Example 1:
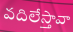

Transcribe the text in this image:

వదిలేస్తావా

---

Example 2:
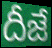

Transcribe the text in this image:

దీజే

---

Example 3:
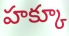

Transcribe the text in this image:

హక్కూ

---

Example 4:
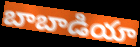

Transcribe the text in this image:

బాబాడియా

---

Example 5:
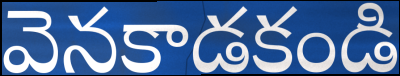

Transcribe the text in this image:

వెనకాడకండి